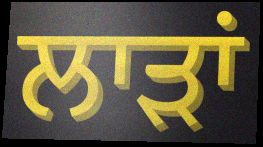
ਲਾੜਾਂ